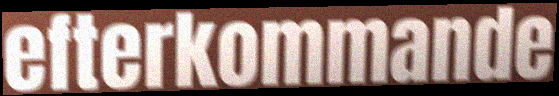
efterkommande